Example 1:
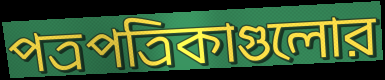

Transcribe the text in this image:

পত্রপত্রিকাগুলোর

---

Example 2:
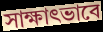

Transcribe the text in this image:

সাক্ষাৎভাবে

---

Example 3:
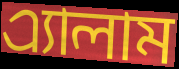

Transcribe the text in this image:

এ্যালাম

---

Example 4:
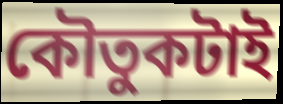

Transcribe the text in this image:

কৌতুকটাই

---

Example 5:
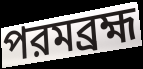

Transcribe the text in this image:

পরমব্রহ্ম